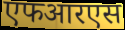
एफआरएस